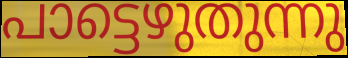
പാട്ടെഴുതുന്നു